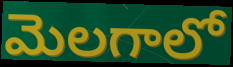
మెలగాలో